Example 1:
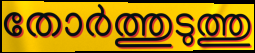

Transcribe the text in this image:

തോർത്തുടുത്തു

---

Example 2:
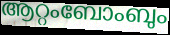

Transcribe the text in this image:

ആറ്റംബോംബും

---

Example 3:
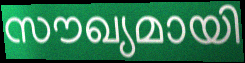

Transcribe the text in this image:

സൗഖ്യമായി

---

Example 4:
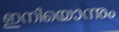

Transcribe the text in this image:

ഇനിയൊന്നും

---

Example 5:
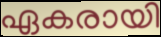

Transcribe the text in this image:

ഏകരായി